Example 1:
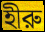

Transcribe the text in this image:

হীরু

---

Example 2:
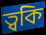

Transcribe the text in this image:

ত্বকি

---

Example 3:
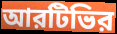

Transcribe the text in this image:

আরটিভির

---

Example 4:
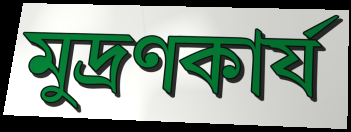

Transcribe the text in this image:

মুদ্রণকার্য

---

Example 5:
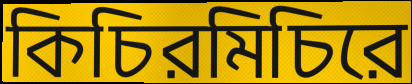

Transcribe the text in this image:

কিচিরমিচিরে